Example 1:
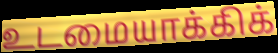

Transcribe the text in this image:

உடமையாக்கிக்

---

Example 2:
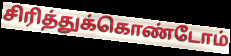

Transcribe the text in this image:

சிரித்துக்கொண்டோம்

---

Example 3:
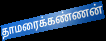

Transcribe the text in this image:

தாமரைக்கண்ணன்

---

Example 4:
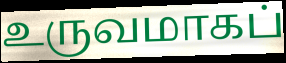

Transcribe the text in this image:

உருவமாகப்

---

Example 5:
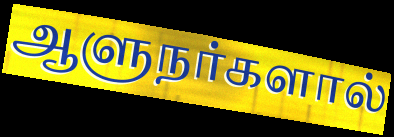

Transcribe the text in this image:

ஆளுநர்களால்